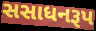
સસાધનરૂપ